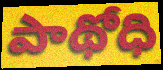
పాథోధి